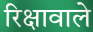
रिक्षावाले